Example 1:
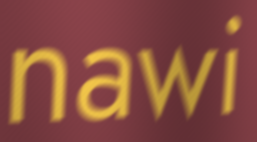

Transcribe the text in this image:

nawi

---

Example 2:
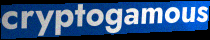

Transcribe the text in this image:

cryptogamous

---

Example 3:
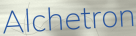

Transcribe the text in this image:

Alchetron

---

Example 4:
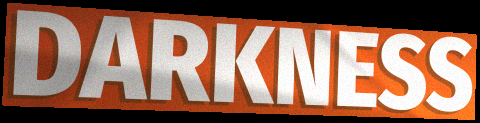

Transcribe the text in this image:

DARKNESS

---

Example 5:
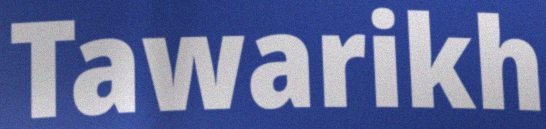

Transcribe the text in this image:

Tawarikh